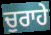
ਚੁਰਾਹੇ